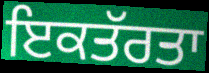
ਇਕਤੱਰਤਾ